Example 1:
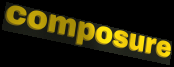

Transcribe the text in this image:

composure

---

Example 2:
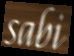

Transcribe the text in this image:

sabi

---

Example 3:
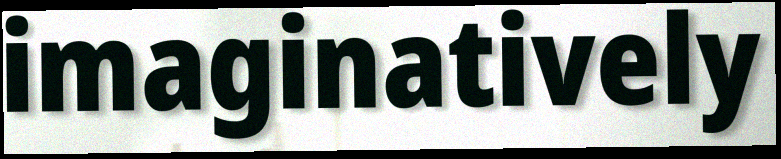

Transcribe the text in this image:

imaginatively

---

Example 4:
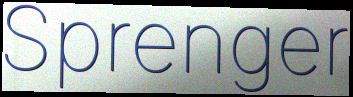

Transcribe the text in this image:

Sprenger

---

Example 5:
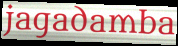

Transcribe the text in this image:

jagadamba